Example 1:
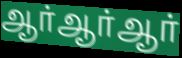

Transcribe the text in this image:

ஆர்ஆர்ஆர்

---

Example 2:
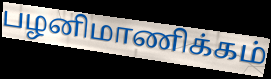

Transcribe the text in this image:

பழனிமாணிக்கம்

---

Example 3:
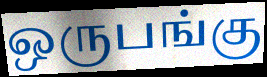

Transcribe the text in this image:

ஒருபங்கு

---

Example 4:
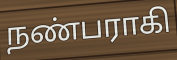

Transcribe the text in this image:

நண்பராகி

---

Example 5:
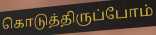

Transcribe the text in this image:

கொடுத்திருப்போம்